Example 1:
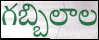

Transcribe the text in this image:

గబ్బిలాల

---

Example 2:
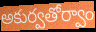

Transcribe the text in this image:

అకుర్వతోర్వాం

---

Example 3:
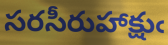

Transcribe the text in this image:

సరసీరుహాక్షుఁ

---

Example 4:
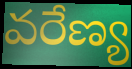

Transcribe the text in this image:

వరేణ్య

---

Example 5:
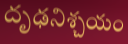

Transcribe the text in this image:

దృఢనిశ్చయం